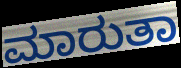
ಮಾರುತಾ